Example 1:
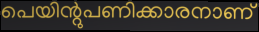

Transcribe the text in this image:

പെയിന്റുപണിക്കാരനാണ്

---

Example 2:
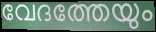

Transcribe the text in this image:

വേദത്തേയും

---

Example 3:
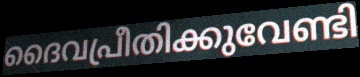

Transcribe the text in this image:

ദൈവപ്രീതിക്കുവേണ്ടി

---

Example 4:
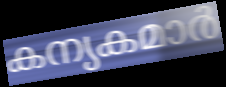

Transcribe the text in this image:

കന്യകമാർ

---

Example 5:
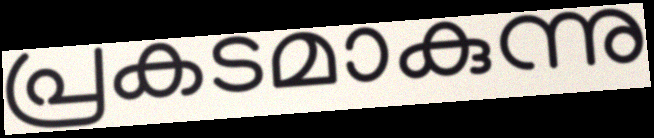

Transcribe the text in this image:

പ്രകടമാകുന്നു